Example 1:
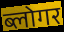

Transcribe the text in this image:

ब्लोगर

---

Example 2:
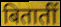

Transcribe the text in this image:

बितातीं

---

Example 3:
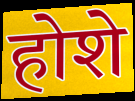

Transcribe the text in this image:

होशे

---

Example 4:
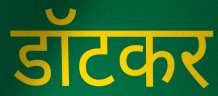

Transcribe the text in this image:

डॉटकर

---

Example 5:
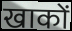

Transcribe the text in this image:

खाकों